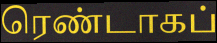
ரெண்டாகப்